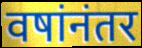
वषांनंतर